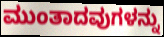
ಮುಂತಾದವುಗಳನ್ನು